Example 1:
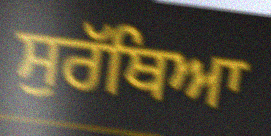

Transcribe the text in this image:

ਸੁਰੱਥਿਆ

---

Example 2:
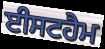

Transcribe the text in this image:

ਈਸਟਹੈਮ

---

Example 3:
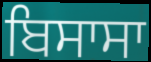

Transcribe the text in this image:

ਬਿਸਾਸਾ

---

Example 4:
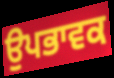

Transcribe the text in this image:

ਉਪਭਾਵਕ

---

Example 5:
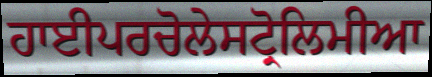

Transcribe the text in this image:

ਹਾਈਪਰਚੋਲੇਸਟ੍ਰੋਲਿਮੀਆ